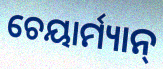
ଚେୟାର୍ମ୍ୟାନ୍